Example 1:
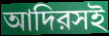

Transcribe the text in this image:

আদিরসই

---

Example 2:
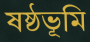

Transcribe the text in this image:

ষষ্ঠভূমি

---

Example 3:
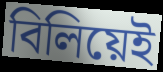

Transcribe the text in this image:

বিলিয়েই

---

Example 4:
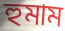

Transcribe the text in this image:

হুমাম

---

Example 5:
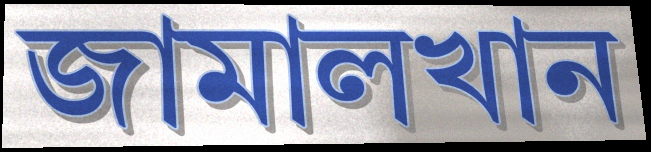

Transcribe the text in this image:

জামালখান